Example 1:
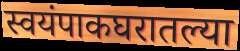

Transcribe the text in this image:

स्वयंपाकघरातल्या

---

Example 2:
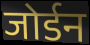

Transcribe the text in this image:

जोर्डन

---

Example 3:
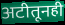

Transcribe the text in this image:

अटीतूनही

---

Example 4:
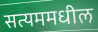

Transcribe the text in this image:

सत्यममधील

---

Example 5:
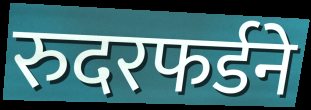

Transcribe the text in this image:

रुदरफर्डने